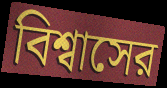
বিশ্বাসের